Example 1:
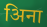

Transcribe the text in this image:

अिना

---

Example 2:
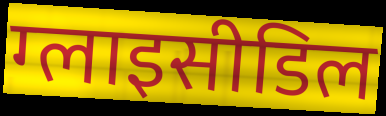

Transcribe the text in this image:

ग्लाइसीडिल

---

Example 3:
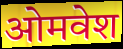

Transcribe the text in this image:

ओमवेश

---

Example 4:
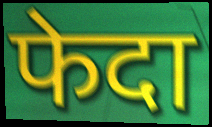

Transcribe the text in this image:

फेदा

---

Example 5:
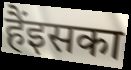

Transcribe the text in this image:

हैंइसका